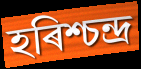
হৰিশ্চন্দ্ৰ